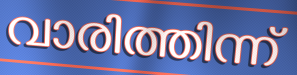
വാരിത്തിന്ന്